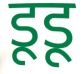
डूडू